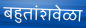
बहुतांशवेळा